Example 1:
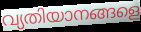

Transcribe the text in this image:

വ്യതിയാനങ്ങളെ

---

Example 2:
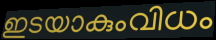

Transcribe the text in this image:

ഇടയാകുംവിധം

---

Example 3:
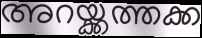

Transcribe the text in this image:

അറയ്ക്കത്തക്ക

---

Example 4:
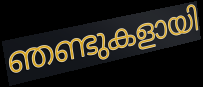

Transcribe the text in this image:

ഞണ്ടുകളായി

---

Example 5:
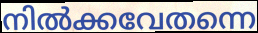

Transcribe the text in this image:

നിൽക്കവേതന്നെ